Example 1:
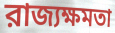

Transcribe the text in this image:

রাজ্যক্ষমতা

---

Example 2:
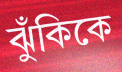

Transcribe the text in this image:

ঝুঁকিকে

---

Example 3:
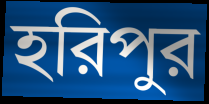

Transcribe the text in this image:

হরিপুর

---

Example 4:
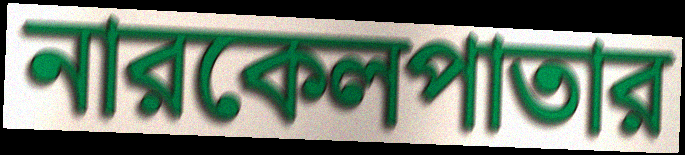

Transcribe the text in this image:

নারকেলপাতার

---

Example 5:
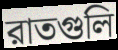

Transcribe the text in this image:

রাতগুলি